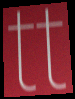
tt